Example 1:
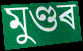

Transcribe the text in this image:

মুণ্ডৰ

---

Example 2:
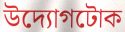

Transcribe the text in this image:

উদ্যোগটোক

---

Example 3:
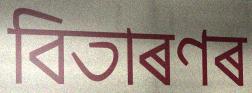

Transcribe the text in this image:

বিতাৰণৰ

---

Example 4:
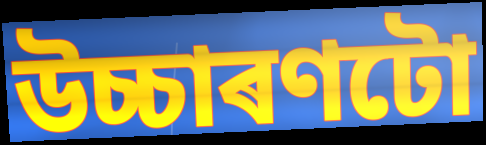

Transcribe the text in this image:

উচ্চাৰণটো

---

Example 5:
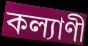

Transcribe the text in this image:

কল্যাণী